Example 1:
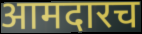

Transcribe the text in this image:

आमदारच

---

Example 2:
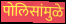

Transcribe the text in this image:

पोलिसांमुळे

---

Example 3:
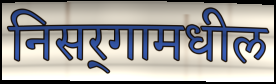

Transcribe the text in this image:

निसर्गामधील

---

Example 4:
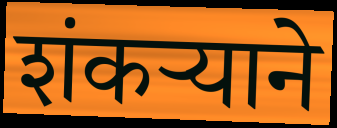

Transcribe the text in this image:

शंकर्‍याने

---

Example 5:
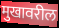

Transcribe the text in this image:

मुखावरील